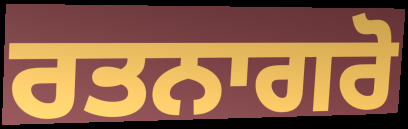
ਰਤਨਾਗਰੋ